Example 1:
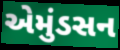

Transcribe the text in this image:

એમુંડસન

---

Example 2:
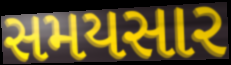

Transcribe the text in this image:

સમયસાર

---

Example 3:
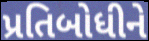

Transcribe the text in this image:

પ્રતિબોધીને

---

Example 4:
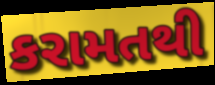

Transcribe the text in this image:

કરામતથી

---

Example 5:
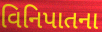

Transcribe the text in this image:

વિનિપાતના